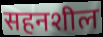
सहनशील